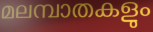
മലമ്പാതകളും